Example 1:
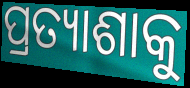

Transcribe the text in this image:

ପ୍ରତ୍ୟାଶାକୁ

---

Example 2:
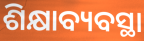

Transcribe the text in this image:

ଶିକ୍ଷାବ୍ୟବସ୍ଥା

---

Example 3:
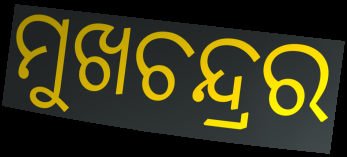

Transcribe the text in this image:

ମୁଖଚନ୍ଦ୍ରର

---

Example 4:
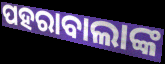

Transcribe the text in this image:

ପହରାବାଲାଙ୍କ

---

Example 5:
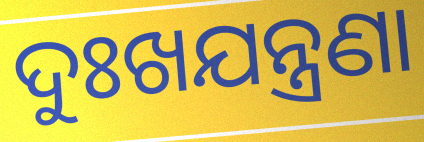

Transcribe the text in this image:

ଦୁଃଖଯନ୍ତ୍ରଣା